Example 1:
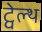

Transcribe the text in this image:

ट्वेल्थ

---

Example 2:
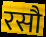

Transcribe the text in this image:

रसौ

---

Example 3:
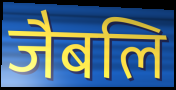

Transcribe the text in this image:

जैबलि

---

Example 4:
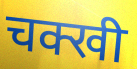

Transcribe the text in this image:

चक्खी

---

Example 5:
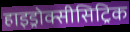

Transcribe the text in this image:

हाइड्रोक्सीसिट्रिक